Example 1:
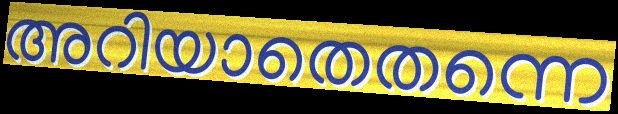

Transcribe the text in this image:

അറിയാതെതന്നെ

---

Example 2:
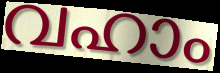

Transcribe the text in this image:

വഹാം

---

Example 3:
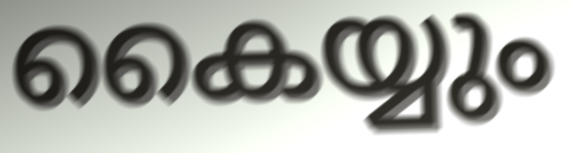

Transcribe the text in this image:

കൈയ്യും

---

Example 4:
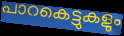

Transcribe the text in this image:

പാറകെട്ടുകളും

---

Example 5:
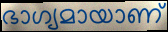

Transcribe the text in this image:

ഭാഗ്യമായാണ്